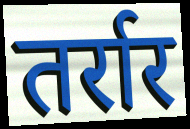
तर्रार